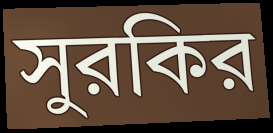
সুরকির